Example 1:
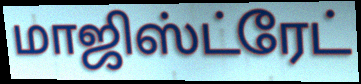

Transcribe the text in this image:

மாஜிஸ்ட்ரேட்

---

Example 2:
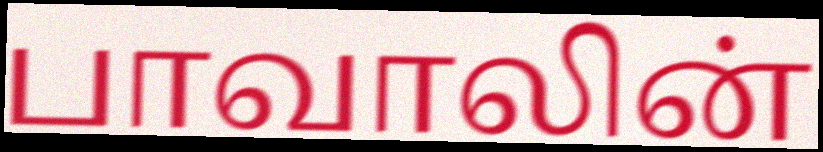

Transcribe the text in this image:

பாவாலின்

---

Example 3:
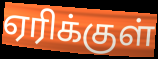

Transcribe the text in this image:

ஏரிக்குள்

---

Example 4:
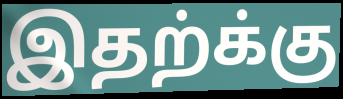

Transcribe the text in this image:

இதற்க்கு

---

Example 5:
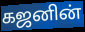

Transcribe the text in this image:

கஜனின்